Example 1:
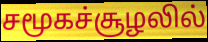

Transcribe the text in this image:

சமூகச்சூழலில்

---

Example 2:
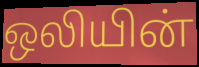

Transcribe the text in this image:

ஒலியின்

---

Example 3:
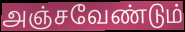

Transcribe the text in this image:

அஞ்சவேண்டும்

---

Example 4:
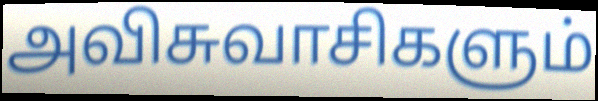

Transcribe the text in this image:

அவிசுவாசிகளும்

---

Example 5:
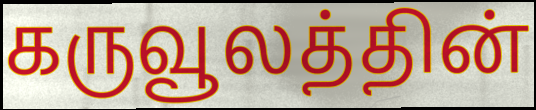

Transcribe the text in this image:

கருவூலத்தின்